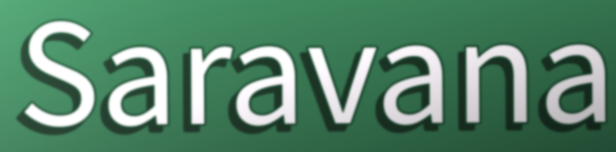
Saravana